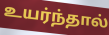
உயர்ந்தால்